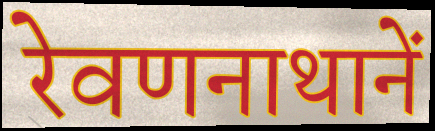
रेवणनाथानें